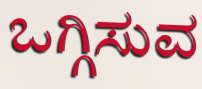
ಒಗ್ಗಿಸುವ